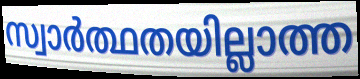
സ്വാർത്ഥതയില്ലാത്ത